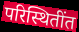
परिस्थितींत